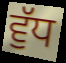
ਵੁੱਧ